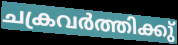
ചക്രവർത്തിക്കു്